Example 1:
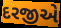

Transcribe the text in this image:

દરજીએ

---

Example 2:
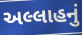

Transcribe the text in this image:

અલ્લાહનું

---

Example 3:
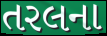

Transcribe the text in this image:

તરલના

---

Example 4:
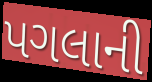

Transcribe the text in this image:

પગલાની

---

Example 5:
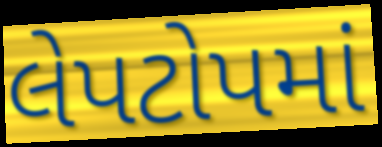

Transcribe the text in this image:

લેપટોપમાં